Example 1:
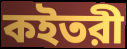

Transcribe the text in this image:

কইতরী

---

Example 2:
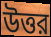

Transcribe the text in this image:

উত্তর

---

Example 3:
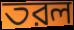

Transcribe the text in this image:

তরল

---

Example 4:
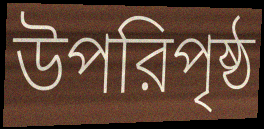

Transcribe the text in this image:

উপরিপৃষ্ঠ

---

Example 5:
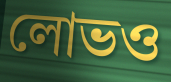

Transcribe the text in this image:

লোভও